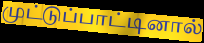
முட்டுப்பாட்டினால்